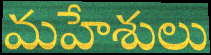
మహేశులు